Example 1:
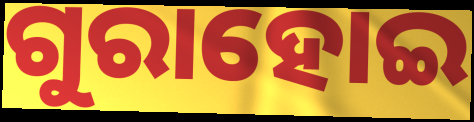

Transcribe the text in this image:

ଗୁରାହୋଇ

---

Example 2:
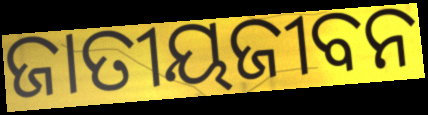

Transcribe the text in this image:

ଜାତୀୟଜୀବନ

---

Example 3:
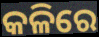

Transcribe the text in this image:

କଳିରେ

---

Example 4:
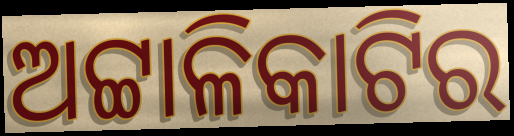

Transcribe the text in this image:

ଅଟ୍ଟାଳିକାଟିର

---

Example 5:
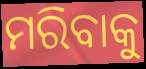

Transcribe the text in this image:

ମରିବାକୁ